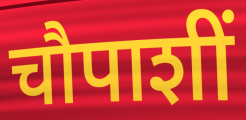
चौपाशीं